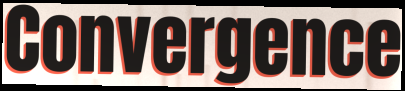
Convergence